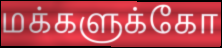
மக்களுக்கோ